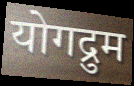
योगद्रुम